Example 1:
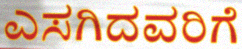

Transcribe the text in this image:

ಎಸಗಿದವರಿಗೆ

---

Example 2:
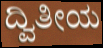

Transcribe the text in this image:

ದ್ವಿತೀಯ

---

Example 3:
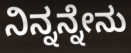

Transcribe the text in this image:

ನಿನ್ನನ್ನೇನು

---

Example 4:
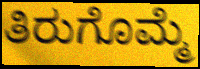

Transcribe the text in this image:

ತಿರುಗೊಮ್ಮೆ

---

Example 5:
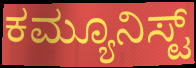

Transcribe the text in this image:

ಕಮ್ಯೂನಿಸ್ಟ್